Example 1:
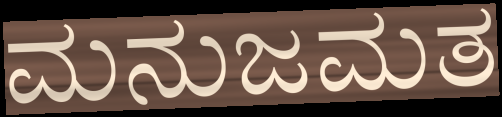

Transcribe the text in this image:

ಮನುಜಮತ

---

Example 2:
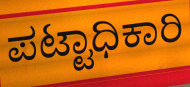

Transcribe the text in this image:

ಪಟ್ಟಾಧಿಕಾರಿ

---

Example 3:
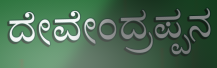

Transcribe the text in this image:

ದೇವೇಂದ್ರಪ್ಪನ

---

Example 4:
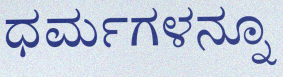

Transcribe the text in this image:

ಧರ್ಮಗಳನ್ನೂ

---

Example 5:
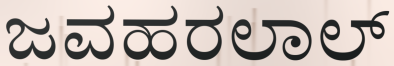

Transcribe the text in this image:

ಜವಹರಲಾಲ್